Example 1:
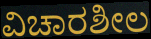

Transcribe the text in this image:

ವಿಚಾರಶೀಲ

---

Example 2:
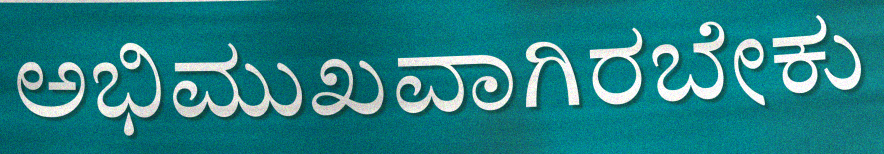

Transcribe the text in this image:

ಅಭಿಮುಖವಾಗಿರಬೇಕು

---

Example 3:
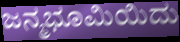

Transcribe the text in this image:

ಜನ್ಮಭೂಮಿಯಿದು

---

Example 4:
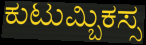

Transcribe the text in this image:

ಕುಟುಮ್ಬಿಕಸ್ಸ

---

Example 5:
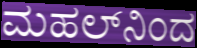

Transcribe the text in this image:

ಮಹಲ್‌ನಿಂದ